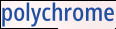
polychrome